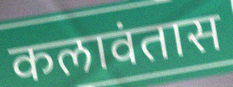
कलावंतास